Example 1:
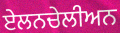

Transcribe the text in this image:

ਏਲਨਚੇਲੀਅਨ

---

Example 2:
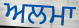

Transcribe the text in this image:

ਅਲਮਾ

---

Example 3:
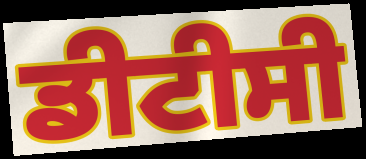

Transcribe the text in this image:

ਡੀਟੀਸੀ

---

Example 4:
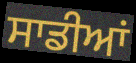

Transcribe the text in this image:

ਸਾਡੀਆਂ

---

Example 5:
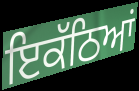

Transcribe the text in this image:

ਇਕੱਠਿਆਂ